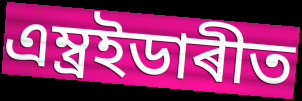
এম্ব্ৰইডাৰীত